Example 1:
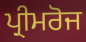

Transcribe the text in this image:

ਪ੍ਰੀਮਰੋਜ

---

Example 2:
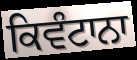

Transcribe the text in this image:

ਕਿਵੰਟਾਨਾ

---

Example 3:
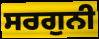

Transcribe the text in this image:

ਸਰਗੁਨੀ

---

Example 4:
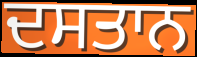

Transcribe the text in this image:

ਦਸਤਾਨ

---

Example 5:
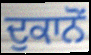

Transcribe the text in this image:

ਦੁਕਾਨੋਂ